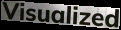
Visualized